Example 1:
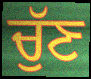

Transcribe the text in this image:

ਚੁੱਣ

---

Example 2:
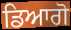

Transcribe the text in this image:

ਡਿਆਗੋ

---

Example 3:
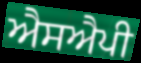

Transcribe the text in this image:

ਐਸਐਪੀ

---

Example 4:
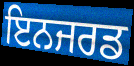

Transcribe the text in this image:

ਇਨਜਰਡ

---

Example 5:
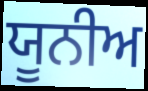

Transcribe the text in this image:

ਯੂਨੀਅ